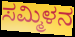
ಸಮ್ಮಿಳನ